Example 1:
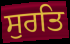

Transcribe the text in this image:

ਸੁਰਤਿ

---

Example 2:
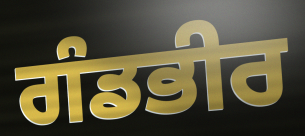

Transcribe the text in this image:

ਗੰਡਭੀਰ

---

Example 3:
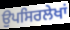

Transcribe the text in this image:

ਉਪਸਿਰਲੇਖਾਂ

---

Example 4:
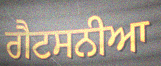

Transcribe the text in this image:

ਗੈਟਸਨੀਆ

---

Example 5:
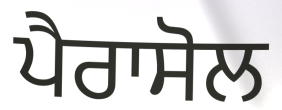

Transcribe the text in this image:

ਪੈਰਾਸੋਲ